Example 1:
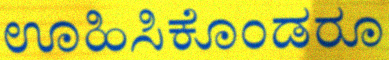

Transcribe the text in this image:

ಊಹಿಸಿಕೊಂಡರೂ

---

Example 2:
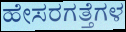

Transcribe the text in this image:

ಹೇಸರಗತ್ತೆಗಳ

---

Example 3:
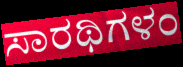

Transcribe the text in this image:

ಸಾರಥಿಗಳಂ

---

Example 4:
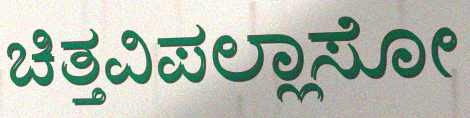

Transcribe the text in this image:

ಚಿತ್ತವಿಪಲ್ಲಾಸೋ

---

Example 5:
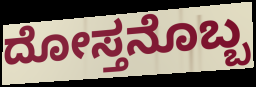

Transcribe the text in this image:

ದೋಸ್ತನೊಬ್ಬ